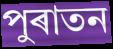
পুৰাতন